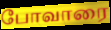
போவாரை